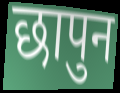
छापुन